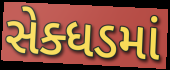
સેક્ધડમાં